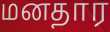
மனதார